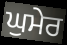
ਘੁਮੇਰ